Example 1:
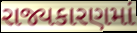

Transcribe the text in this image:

રાજ્યકારણમાં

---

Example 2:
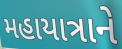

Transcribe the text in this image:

મહાયાત્રાને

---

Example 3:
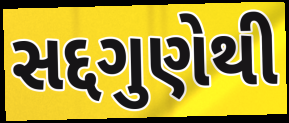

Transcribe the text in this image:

સદ્દગુણેથી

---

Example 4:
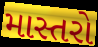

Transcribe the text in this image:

માસ્તરો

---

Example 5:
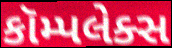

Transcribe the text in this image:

કૉમ્પલેક્સ